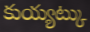
కుయ్యట్కు